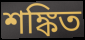
শঙ্কিত